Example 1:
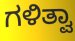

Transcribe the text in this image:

ಗಳಿತ್ವಾ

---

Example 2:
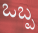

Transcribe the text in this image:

ಒಬ್ಪ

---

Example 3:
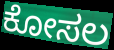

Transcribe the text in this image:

ಕೋಸಲ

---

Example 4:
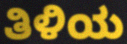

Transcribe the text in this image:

ತಿಳಿಯ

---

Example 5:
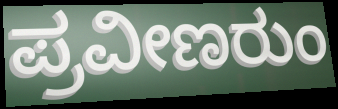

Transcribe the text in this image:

ಪ್ರವೀಣರುಂ